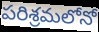
పరిశ్రమలోనో